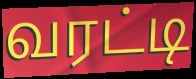
வரட்டி